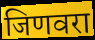
जिणवरा